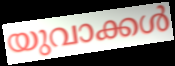
യുവാക്കൾ